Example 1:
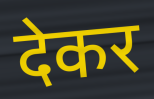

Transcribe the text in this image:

देकर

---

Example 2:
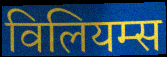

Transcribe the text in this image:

विलियम्स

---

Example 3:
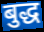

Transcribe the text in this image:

बुद्ध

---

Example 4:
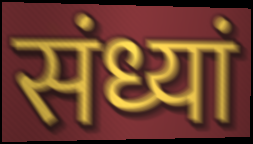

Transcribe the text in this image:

संध्यां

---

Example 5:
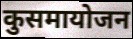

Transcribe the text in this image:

कुसमायोजन